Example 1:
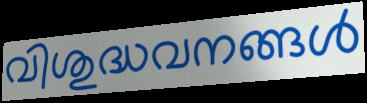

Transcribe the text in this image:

വിശുദ്ധവനങ്ങൾ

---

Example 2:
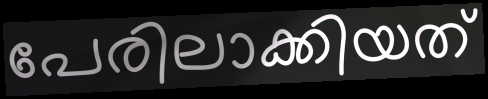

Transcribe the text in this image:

പേരിലാക്കിയത്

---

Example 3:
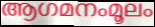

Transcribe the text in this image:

ആഗമനംമൂലം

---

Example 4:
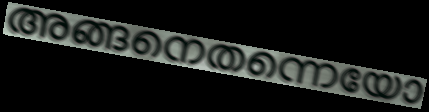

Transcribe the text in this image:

അങ്ങനെതന്നെയോ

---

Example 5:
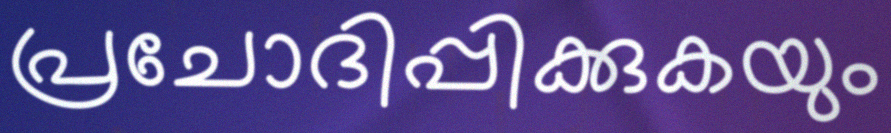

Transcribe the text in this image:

പ്രചോദിപ്പിക്കുകയും